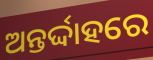
ଅନ୍ତର୍ଦ୍ଦାହରେ